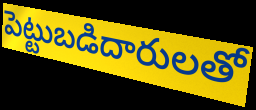
పెట్టుబడిదారులతో